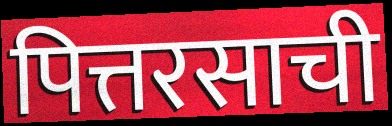
पित्तरसाची